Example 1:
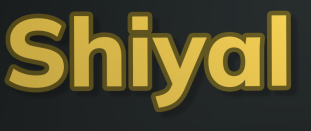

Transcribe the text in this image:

Shiyal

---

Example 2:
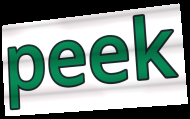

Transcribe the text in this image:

peek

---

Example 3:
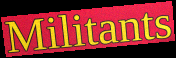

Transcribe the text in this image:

Militants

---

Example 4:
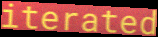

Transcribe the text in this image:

iterated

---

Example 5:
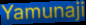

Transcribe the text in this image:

Yamunaji